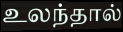
உலந்தால்